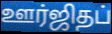
ஊர்ஜிதப்